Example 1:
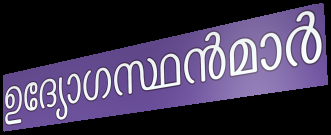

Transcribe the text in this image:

ഉദ്യോഗസ്ഥൻമാർ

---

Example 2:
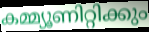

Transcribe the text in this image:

കമ്മ്യൂണിറ്റിക്കും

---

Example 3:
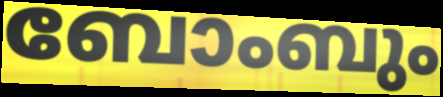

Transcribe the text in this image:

ബോംബും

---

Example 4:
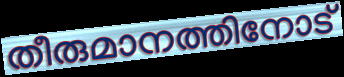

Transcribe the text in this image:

തീരുമാനത്തിനോട്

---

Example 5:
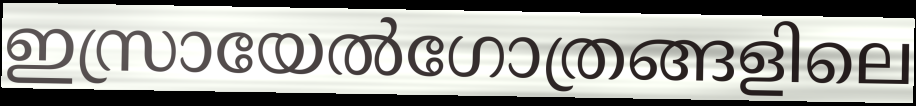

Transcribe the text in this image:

ഇസ്രായേൽഗോത്രങ്ങളിലെ